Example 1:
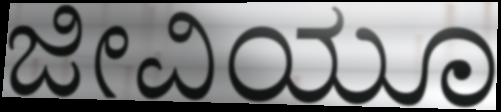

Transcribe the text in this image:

ಜೀವಿಯೂ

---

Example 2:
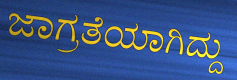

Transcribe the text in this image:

ಜಾಗ್ರತೆಯಾಗಿದ್ದು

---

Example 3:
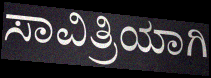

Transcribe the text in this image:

ಸಾವಿತ್ರಿಯಾಗಿ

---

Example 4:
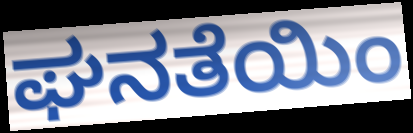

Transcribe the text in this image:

ಘನತೆಯಿಂ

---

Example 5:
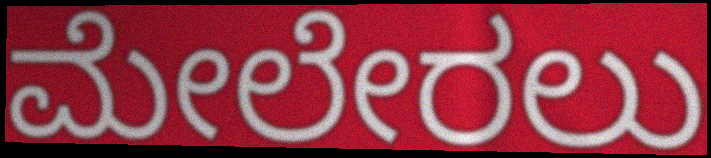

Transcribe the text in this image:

ಮೇಲೇರಲು